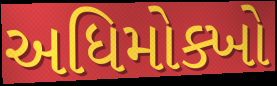
અધિમોક્ખો